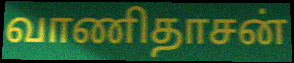
வாணிதாசன்